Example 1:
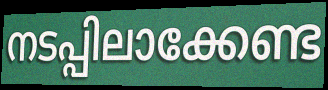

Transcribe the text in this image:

നടപ്പിലാക്കേണ്ട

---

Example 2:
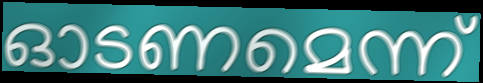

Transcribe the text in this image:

ഓടണമെന്ന്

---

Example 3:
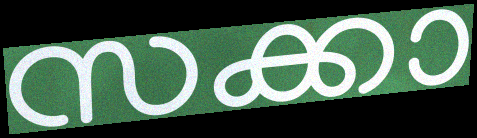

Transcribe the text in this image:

സക്കാ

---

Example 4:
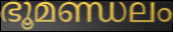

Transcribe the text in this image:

ഭൂമണ്ഡലം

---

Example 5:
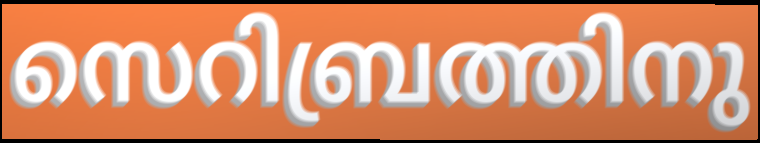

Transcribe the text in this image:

സെറിബ്രത്തിനു